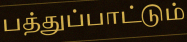
பத்துப்பாட்டும்